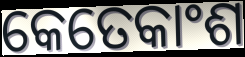
କେତେକାଂଶ